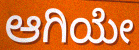
ಆಗಿಯೇ